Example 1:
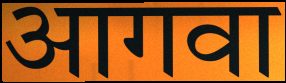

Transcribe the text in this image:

आगवा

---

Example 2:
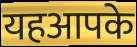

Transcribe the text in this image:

यहआपके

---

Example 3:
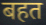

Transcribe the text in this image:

बहत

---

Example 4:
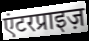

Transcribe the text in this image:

एंटरप्राइज़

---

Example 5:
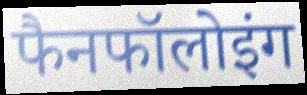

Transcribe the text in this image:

फैनफॉलोइंग